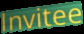
Invitee